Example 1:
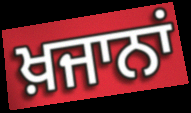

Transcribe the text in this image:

ਖ਼ਜਾਨਾਂ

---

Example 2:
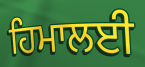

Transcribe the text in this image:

ਹਿਮਾਲਈ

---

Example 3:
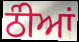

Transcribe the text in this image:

ਠੰੀਆਂ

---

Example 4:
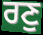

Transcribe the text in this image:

ਰਣੁ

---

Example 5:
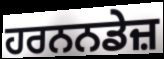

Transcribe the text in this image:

ਹਰਨਨਡੇਜ਼